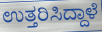
ಉತ್ತರಿಸಿದ್ದಾಳೆ